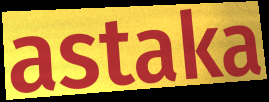
astaka